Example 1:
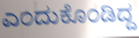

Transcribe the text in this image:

ಎಂದುಕೊಂಡಿದ್ದ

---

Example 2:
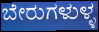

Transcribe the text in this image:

ಬೇರುಗಳುಳ್ಳ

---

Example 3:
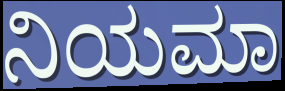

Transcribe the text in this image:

ನಿಯಮಾ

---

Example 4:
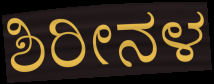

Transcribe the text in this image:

ಶಿರೀನಳ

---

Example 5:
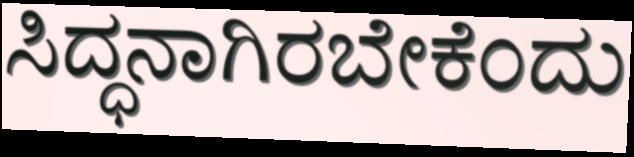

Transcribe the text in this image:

ಸಿದ್ಧನಾಗಿರಬೇಕೆಂದು